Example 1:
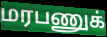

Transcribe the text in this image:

மரபணுக்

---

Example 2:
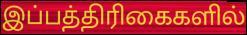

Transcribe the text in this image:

இப்பத்திரிகைகளில்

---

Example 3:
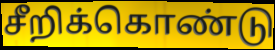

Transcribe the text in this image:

சீறிக்கொண்டு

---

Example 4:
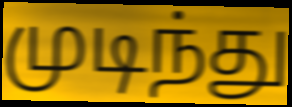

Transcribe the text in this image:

முடிந்து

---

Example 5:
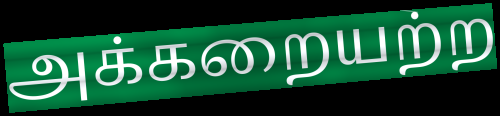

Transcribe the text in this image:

அக்கறையற்ற